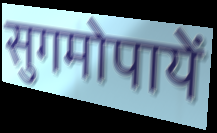
सुगमोपायें